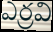
ఎర్రవి